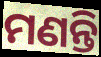
ମଣନ୍ତି